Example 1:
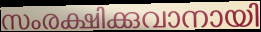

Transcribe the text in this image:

സംരക്ഷിക്കുവാനായി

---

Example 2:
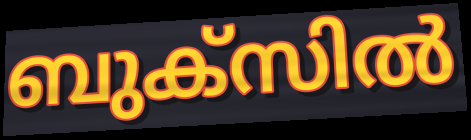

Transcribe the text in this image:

ബുക്സിൽ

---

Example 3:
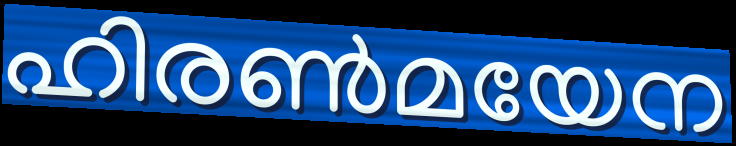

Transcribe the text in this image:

ഹിരൺമയേന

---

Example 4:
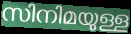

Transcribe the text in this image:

സിനിമയുള്ള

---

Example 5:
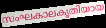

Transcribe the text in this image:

സംഘകാലകൃതിയായ